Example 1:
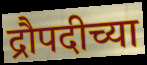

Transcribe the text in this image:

द्रौपदीच्या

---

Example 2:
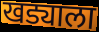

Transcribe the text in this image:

खड्याला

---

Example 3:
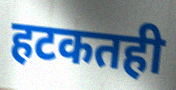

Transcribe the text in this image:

हटकतही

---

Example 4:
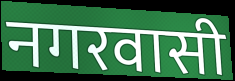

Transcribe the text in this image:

नगरवासी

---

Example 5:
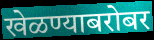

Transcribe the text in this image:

खेळण्याबरोबर